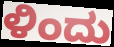
ಳಿಂದು